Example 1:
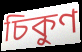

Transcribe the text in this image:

চিকুণ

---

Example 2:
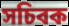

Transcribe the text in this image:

সচিবক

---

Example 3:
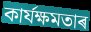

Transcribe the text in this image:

কাৰ্যক্ষমতাৰ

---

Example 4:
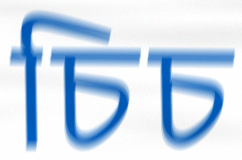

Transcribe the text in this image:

চিচ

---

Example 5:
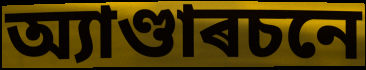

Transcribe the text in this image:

অ্যাণ্ডাৰচনে